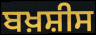
ਬਖ਼ਸ਼ੀਸ